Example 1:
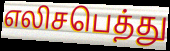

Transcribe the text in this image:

எலிசபெத்து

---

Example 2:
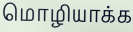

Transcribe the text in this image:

மொழியாக்க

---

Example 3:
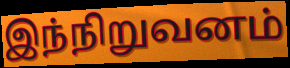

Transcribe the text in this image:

இந்நிறுவனம்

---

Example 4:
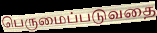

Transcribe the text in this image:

பெருமைப்படுவதை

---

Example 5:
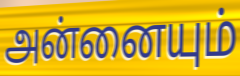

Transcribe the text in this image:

அன்னையும்